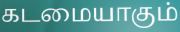
கடமையாகும்